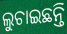
ଲୁଚାଇଛନ୍ତି